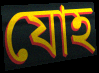
যোহ